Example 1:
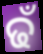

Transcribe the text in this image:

ଢଁ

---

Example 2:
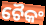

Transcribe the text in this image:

ଚୈକଂ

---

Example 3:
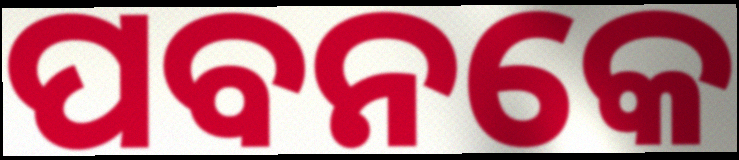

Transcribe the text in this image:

ପବନକେ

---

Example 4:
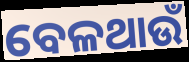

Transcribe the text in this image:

ବେଳଥାଉଁ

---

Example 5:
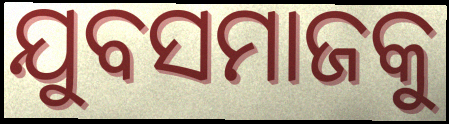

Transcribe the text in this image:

ଯୁବସମାଜକୁ